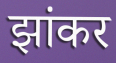
झांकर